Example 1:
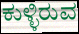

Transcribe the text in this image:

ಕುಳ್ಳಿರುವ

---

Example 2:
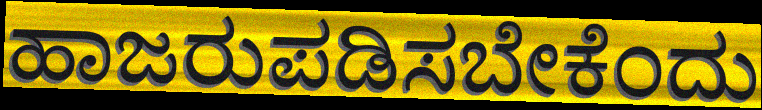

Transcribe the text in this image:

ಹಾಜರುಪಡಿಸಬೇಕೆಂದು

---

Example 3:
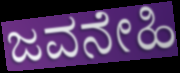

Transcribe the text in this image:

ಜವನೇಹಿ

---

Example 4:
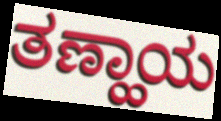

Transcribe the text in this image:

ತಣ್ಹಾಯ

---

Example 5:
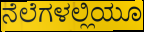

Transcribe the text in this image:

ನೆಲೆಗಳಲ್ಲಿಯೂ